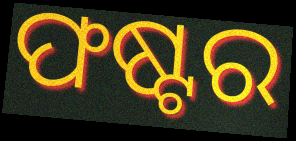
ଫଷ୍ଟର